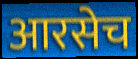
आरसेच